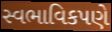
સ્વભાવિકપણે